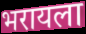
भरायला